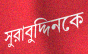
সুরাবুদ্দিনকে